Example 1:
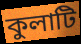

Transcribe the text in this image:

কুলাটি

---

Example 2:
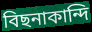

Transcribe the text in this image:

বিছনাকান্দি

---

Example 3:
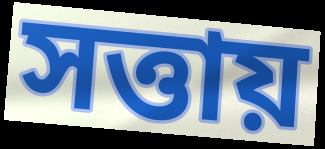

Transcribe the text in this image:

সত্তায়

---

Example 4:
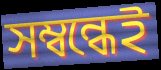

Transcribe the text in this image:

সম্বন্ধেই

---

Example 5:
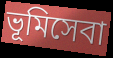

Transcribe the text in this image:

ভূমিসেবা